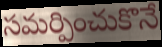
సమర్పించుకొనే